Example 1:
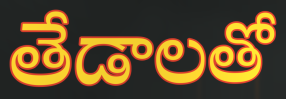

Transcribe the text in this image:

తేడాలతో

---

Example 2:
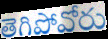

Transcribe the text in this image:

తెగిపోవోరు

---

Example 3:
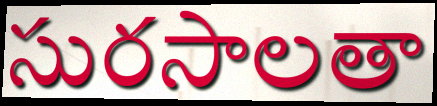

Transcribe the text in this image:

సురసాలతా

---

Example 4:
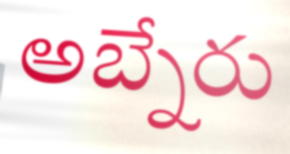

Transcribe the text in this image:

అబ్నేరు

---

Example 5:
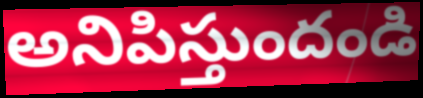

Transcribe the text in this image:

అనిపిస్తుందండి